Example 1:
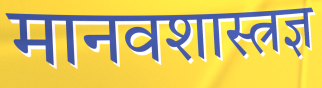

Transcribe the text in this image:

मानवशास्त्रज्ञ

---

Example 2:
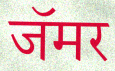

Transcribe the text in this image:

जॅमर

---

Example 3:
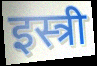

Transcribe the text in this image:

इस्त्री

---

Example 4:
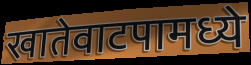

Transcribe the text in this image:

खातेवाटपामध्ये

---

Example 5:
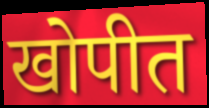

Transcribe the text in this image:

खोपीत